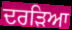
ਦਰੜਿਆ